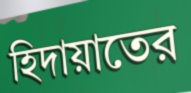
হিদায়াতের